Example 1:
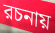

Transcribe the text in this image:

রচনায়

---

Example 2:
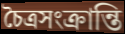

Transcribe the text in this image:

চৈত্রসংক্রান্তি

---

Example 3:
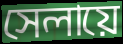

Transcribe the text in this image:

সেলায়ে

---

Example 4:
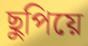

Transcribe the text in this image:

ছুপিয়ে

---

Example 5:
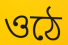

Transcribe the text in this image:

ওঠে